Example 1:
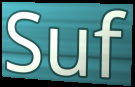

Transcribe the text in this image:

Suf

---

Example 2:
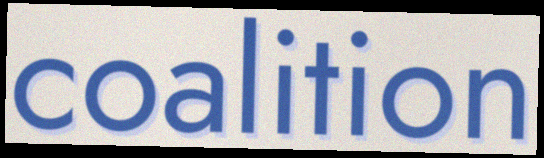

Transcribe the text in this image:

coalition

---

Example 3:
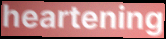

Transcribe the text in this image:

heartening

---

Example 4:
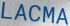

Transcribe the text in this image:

LACMA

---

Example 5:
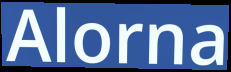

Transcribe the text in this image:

Alorna